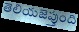
తెలియజెప్తుంది